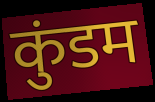
कुंडम